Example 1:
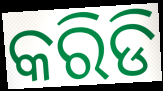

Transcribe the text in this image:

କରିଡି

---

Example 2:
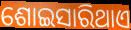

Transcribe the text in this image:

ଶୋଇସାରିଥାଏ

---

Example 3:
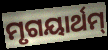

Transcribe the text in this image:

ମୃଗୟାର୍ଥମ୍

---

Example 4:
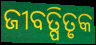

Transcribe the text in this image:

ଜୀବତ୍ପିତୃକ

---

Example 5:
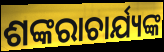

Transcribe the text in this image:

ଶଙ୍କରାଚାର୍ଯ୍ୟଙ୍କ